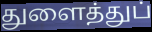
துளைத்துப்